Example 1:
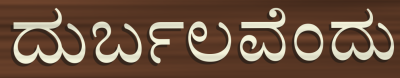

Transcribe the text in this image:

ದುರ್ಬಲವೆಂದು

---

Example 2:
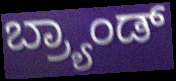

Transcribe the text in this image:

ಬ್ರ್ಯಾಂಡ್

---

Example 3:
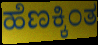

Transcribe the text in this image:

ಹೆಣಕ್ಕಿಂತ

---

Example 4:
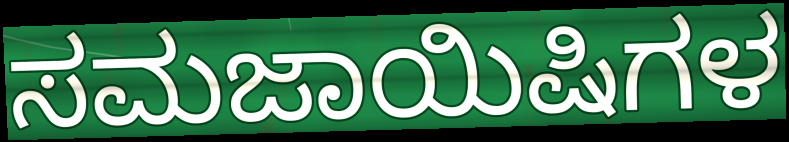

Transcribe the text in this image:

ಸಮಜಾಯಿಷಿಗಳ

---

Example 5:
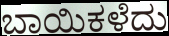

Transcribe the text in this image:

ಬಾಯಿಕಳೆದು